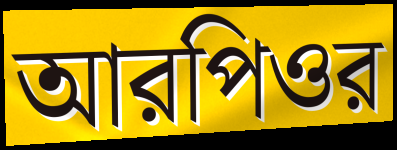
আরপিওর